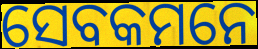
ସେବକମନେ